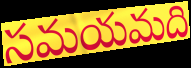
సమయమది